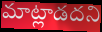
మాట్లాడదని